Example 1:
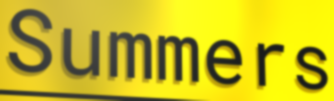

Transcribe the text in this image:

Summers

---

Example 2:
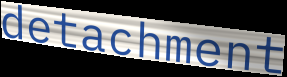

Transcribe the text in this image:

detachment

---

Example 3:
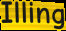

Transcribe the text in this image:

Illing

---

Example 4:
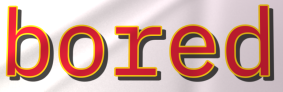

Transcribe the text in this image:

bored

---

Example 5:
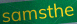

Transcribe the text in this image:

samsthe